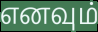
எனவும்